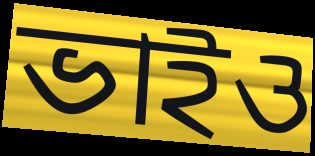
ভাইও